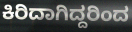
ಕಿರಿದಾಗಿದ್ದರಿಂದ